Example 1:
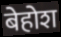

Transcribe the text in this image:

बेहोश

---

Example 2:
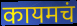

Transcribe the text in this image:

कायमचं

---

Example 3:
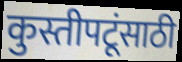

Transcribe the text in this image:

कुस्तीपटूंसाठी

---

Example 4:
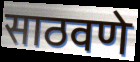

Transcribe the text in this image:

साठवणे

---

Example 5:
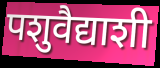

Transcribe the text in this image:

पशुवैद्याशी